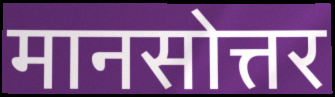
मानसोत्तर